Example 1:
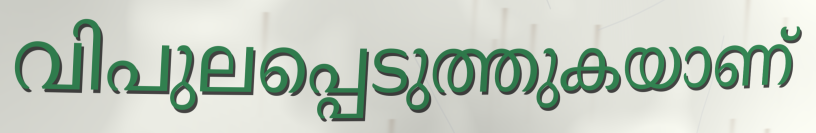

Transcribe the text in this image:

വിപുലപ്പെടുത്തുകയാണ്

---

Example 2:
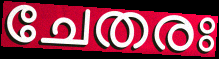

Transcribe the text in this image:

ചേതരഃ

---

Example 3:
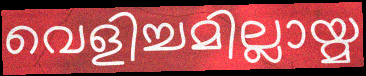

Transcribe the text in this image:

വെളിച്ചമില്ലായ്മ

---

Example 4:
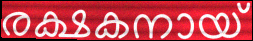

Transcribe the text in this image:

രക്ഷകനായ്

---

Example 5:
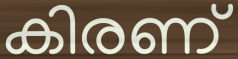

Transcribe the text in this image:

കിരണ്